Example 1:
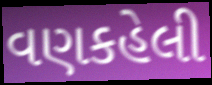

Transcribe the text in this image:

વણકહેલી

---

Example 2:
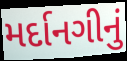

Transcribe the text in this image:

મર્દાનગીનું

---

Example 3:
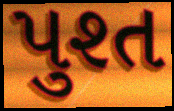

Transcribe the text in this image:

પુશ્ત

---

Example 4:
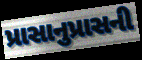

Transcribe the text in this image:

પ્રાસાનુપ્રાસની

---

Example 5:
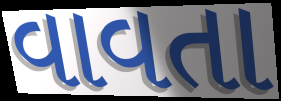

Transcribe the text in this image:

વાવતા